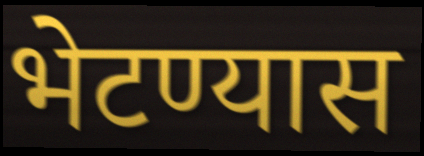
भेटण्यास